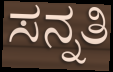
ಸನ್ನತಿ